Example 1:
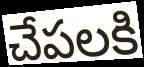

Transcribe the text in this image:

చేపలకి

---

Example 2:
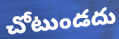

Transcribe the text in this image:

చోటుండదు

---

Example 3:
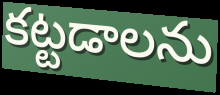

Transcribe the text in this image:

కట్టడాలను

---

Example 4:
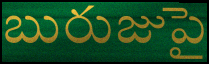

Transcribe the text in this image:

బురుజుపై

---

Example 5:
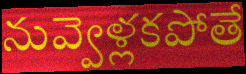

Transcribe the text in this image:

నువ్వెళ్లకపోతే